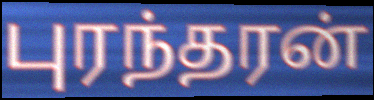
புரந்தரன்